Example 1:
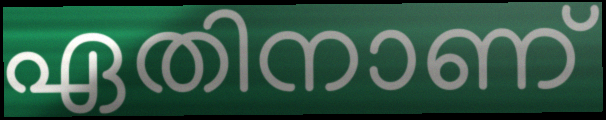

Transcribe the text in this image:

ഏതിനാണ്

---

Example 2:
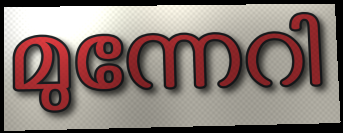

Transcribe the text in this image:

മുന്നേറി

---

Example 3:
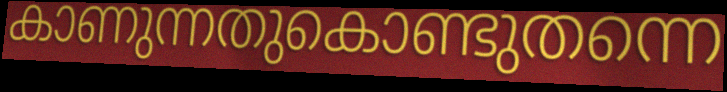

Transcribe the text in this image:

കാണുന്നതുകൊണ്ടുതന്നെ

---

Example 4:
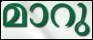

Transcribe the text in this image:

മാറു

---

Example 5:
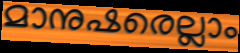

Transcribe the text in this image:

മാനുഷരെല്ലാം